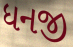
ધનજી